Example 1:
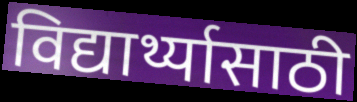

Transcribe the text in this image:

विद्यार्थ्यासाठी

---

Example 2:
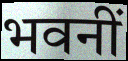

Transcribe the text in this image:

भवनीं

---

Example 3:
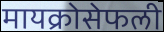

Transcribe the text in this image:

मायक्रोसेफली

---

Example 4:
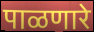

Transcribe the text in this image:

पाळणारे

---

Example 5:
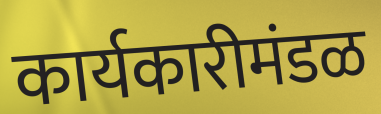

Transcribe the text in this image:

कार्यकारीमंडळ